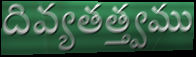
దివ్యతత్త్వము